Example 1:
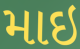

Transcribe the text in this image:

માઇ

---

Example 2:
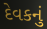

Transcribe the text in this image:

દેવકનું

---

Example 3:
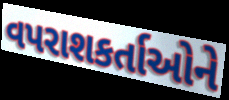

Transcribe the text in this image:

વપરાશકર્તાઓને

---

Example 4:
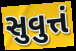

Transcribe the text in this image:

સુવુત્તં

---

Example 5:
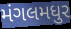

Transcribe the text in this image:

મંગલમધુર